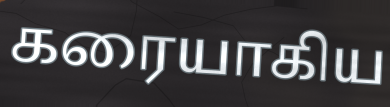
கரையாகிய